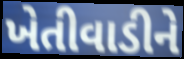
ખેતીવાડીને